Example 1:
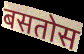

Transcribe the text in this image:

बसतोस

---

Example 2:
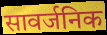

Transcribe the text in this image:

सावर्जनिक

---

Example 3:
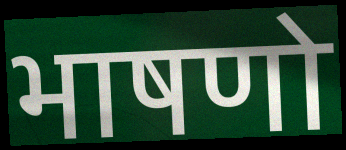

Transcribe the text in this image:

भाषणो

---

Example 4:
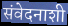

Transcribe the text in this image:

संवेदनाशी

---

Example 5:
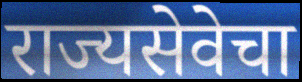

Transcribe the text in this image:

राज्यसेवेचा